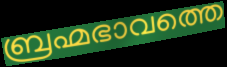
ബ്രഹ്മഭാവത്തെ